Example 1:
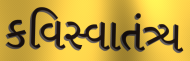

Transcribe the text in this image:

કવિસ્વાતંત્ર્ય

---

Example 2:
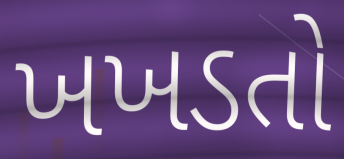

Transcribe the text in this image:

ખખડતો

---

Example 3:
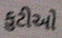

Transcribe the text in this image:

કુટીઓ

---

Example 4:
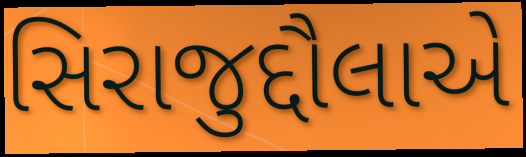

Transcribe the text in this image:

સિરાજુદ્દૌલાએ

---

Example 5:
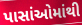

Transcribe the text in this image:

પાસાંઓમાંથી